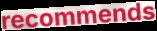
recommends